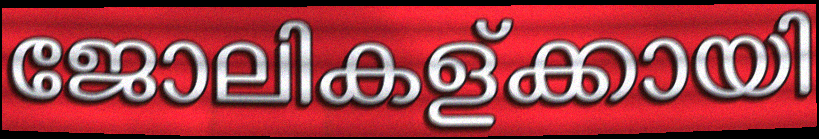
ജോലികള്ക്കായി